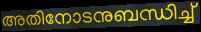
അതിനോടനുബന്ധിച്ച്